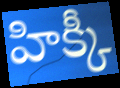
హిక్కీ